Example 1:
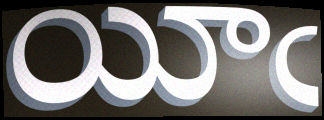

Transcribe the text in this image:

యీఁ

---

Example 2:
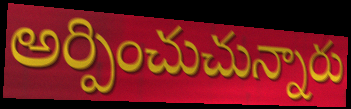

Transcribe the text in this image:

అర్పించుచున్నారు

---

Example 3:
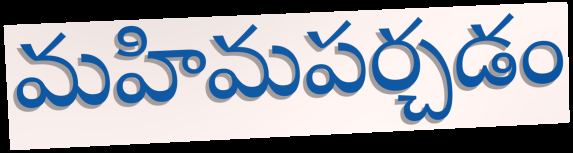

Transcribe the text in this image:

మహిమపర్చడం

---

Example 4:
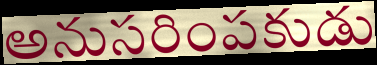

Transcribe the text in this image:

అనుసరింపకుడు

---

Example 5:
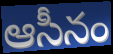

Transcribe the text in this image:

ఆసీనం